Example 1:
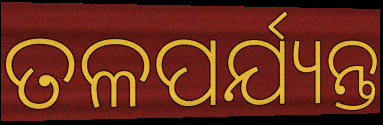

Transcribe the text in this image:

ତଳପର୍ଯ୍ୟନ୍ତ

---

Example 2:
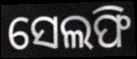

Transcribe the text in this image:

ସେଲଫି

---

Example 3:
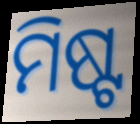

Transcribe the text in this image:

ମିଷ୍ଟ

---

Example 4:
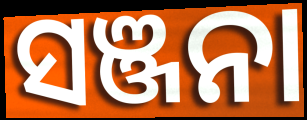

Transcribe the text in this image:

ସଞ୍ଜନା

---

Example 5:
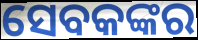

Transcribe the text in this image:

ସେବକଙ୍କର